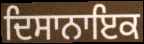
ਦਿਸਾਨਾਇਕ